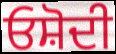
ਓਸ਼ੋਦੀ